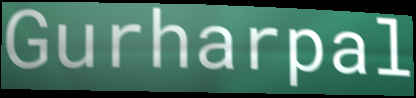
Gurharpal